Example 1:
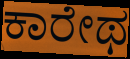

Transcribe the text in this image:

ಕಾರೇಥ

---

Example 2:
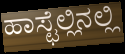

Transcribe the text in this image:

ಹಾಸ್ಟೆಲ್ಲಿನಲ್ಲಿ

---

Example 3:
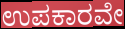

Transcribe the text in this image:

ಉಪಕಾರವೇ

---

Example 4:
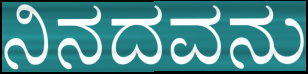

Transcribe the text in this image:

ನಿನದವನು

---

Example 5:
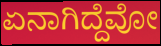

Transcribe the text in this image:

ಏನಾಗಿದ್ದೆವೋ